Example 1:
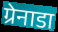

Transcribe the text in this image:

ग्रेनाडा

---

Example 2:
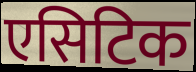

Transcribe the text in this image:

एसिटिक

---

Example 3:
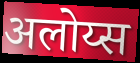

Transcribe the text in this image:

अलोय्स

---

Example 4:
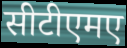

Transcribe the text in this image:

सीटीएमए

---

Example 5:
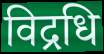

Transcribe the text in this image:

विद्रधि